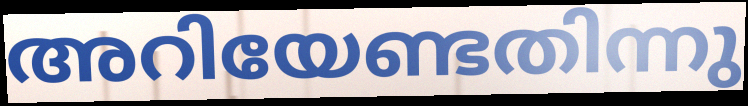
അറിയേണ്ടതിന്നു